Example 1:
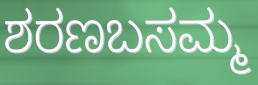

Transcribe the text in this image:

ಶರಣಬಸಮ್ಮ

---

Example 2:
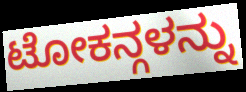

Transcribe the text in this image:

ಟೋಕನ್ಗಳನ್ನು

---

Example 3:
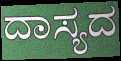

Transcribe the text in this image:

ದಾಸ್ಯದ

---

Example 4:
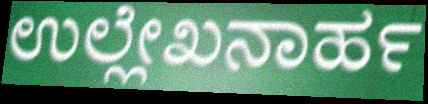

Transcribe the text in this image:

ಉಲ್ಲೇಖನಾರ್ಹ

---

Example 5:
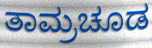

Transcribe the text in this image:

ತಾಮ್ರಚೂಡ